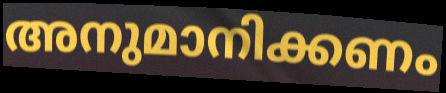
അനുമാനിക്കണം